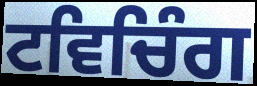
ਟਵਿਚਿੰਗ